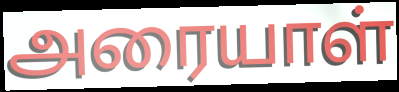
அரையாள்